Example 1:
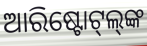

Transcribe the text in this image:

ଆରିଷ୍ଟୋଟ୍‌ଲ୍‌ଙ୍କ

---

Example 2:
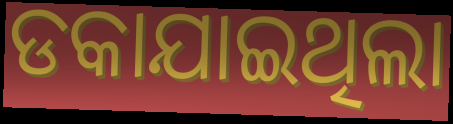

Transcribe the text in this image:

ଡକାଯାଇଥିଲା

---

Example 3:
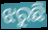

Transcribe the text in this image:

ଝରୁଛି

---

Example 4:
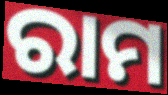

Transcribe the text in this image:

ରାମ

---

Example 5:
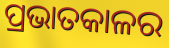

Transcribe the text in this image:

ପ୍ରଭାତକାଳର